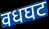
वधघट